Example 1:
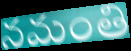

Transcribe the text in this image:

నమంతి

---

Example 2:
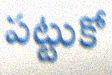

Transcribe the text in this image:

పట్టుకో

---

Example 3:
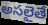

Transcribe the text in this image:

అసలైతే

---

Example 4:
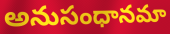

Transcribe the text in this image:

అనుసంధానమా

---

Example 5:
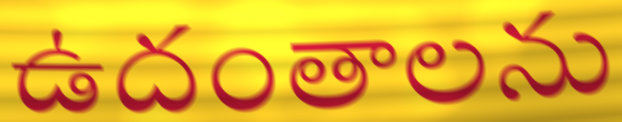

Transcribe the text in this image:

ఉదంతాలను